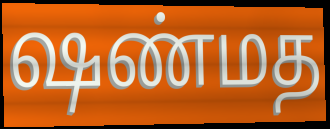
ஷண்மத